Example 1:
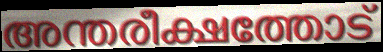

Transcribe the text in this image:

അന്തരീക്ഷത്തോട്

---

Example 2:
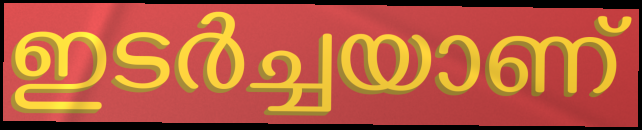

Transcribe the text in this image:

ഇടർച്ചയാണ്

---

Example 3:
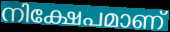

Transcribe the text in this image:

നിക്ഷേപമാണ്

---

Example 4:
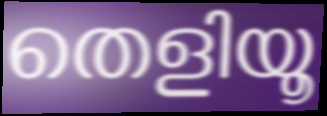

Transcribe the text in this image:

തെളിയൂ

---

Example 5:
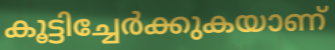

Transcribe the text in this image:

കൂട്ടിച്ചേർക്കുകയാണ്